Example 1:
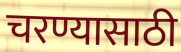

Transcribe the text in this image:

चरण्यासाठी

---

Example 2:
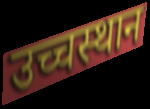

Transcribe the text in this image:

उच्चस्थान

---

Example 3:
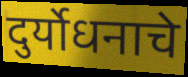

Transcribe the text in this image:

दुर्योधनाचे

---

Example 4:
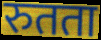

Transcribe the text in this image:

रुतता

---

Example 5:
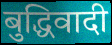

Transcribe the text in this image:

बुद्धिवादी